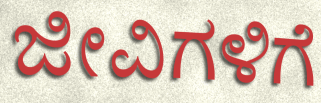
ಜೀವಿಗಳಿಗೆ